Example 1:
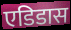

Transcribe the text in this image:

एडिडास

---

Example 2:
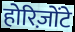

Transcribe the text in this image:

होरिज़ोंटे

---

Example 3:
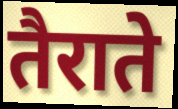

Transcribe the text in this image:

तैराते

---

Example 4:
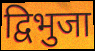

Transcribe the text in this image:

द्विभुजा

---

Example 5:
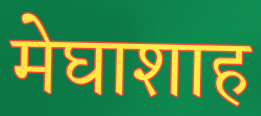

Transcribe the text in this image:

मेघाशाह